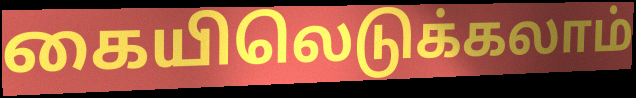
கையிலெடுக்கலாம்